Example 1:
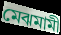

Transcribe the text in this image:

মেঝমামী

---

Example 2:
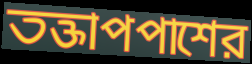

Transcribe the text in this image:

তক্তাপপাশের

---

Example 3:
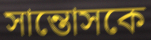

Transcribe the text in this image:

সান্তোসকে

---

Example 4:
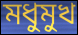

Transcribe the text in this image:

মধুমুখ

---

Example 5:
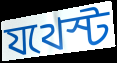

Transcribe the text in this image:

যথেস্ট